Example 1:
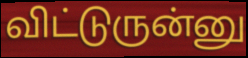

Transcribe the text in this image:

விட்டுருன்னு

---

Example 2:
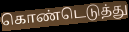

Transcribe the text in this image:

கொண்டெடுத்து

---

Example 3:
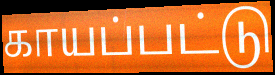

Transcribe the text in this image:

காயப்பட்டு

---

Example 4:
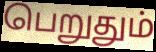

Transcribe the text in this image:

பெறுதும்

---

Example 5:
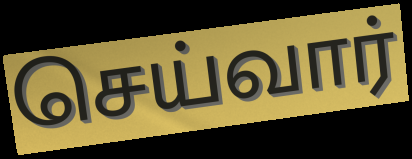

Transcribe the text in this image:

செய்வார்